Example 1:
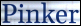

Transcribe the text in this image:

Pinker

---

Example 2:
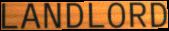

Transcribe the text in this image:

LANDLORD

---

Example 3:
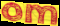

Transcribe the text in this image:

om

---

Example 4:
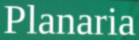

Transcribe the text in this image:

Planaria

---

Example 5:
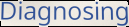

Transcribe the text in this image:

Diagnosing